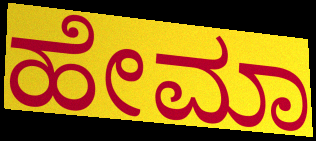
ಹೇಮಾ